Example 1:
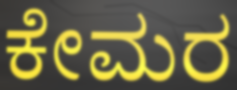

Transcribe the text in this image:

ಕೇಮರ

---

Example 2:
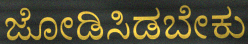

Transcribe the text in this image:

ಜೋಡಿಸಿಡಬೇಕು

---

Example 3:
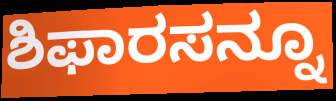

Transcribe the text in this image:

ಶಿಫಾರಸನ್ನೂ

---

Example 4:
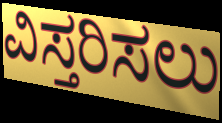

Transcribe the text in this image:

ವಿಸ್ತರಿಸಲು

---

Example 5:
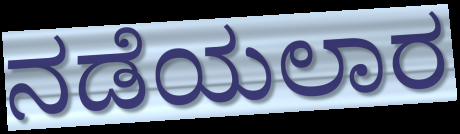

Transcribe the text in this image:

ನಡೆಯಲಾರ